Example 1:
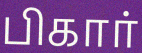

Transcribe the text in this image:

பிகார்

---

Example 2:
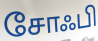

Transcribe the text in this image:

சோஃபி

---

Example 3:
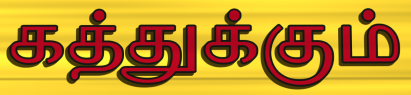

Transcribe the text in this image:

கத்துக்கும்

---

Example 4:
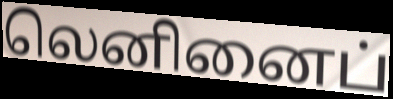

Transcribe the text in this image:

லெனினைப்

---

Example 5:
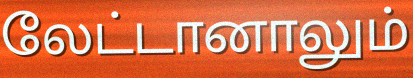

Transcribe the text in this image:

லேட்டானாலும்